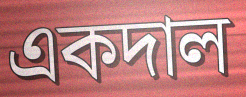
একদাল